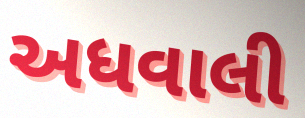
અધવાલી